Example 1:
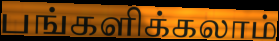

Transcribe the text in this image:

பங்களிக்கலாம்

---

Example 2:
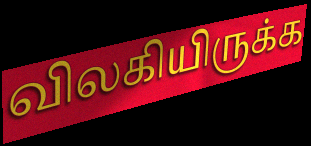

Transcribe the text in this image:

விலகியிருக்க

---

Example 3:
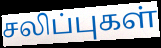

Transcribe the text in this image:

சலிப்புகள்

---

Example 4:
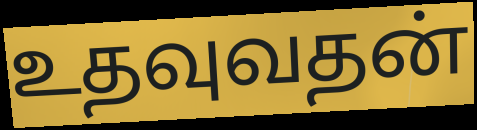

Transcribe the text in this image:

உதவுவதன்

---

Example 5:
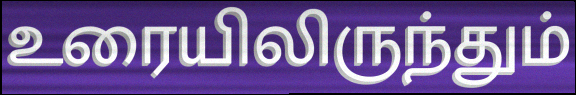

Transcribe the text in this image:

உரையிலிருந்தும்